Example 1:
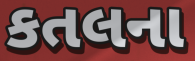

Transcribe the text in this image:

કતલના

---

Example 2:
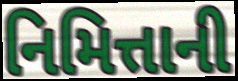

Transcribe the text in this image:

નિમિત્તાની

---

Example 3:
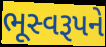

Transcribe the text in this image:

ભૂસ્વરૂપને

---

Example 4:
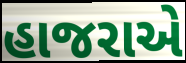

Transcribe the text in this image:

હાજરાએ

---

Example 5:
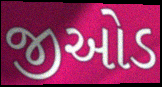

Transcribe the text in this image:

જીઓડ